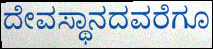
ದೇವಸ್ಥಾನದವರೆಗೂ